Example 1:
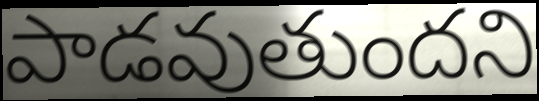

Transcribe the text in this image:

పాడవుతుందని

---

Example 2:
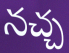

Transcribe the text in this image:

నచ్చ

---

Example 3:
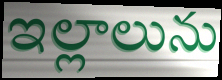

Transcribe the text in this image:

ఇల్లాలును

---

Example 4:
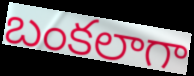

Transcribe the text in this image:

బంకలాగా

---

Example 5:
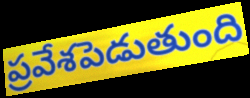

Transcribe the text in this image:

ప్రవేశపెడుతుంది